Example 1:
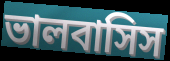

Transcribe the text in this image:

ভালবাসিস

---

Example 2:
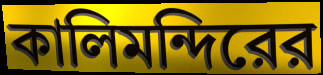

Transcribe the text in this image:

কালিমন্দিরের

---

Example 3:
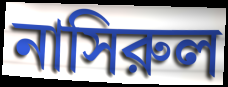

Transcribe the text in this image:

নাসিরুল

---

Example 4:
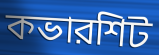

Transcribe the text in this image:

কভারশিট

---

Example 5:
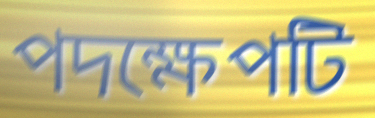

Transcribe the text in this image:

পদক্ষেপটি